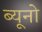
ब्यूनो